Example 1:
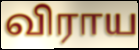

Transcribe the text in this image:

விராய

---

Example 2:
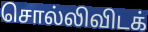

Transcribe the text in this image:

சொல்லிவிடக்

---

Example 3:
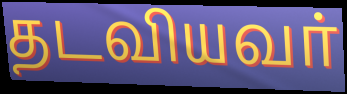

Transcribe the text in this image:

தடவியவர்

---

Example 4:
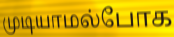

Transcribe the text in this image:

முடியாமல்போக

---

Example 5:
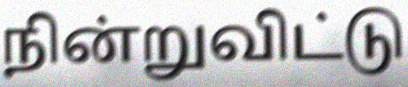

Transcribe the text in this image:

நின்றுவிட்டு